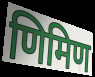
णिमिण